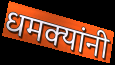
धमक्यांनी